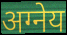
अग्नेय